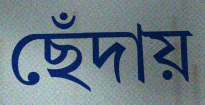
ছেঁদায়